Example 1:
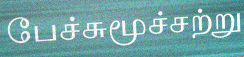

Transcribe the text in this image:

பேச்சுமூச்சற்று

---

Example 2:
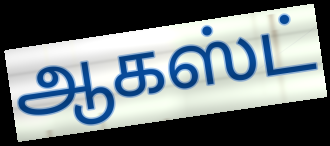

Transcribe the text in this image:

ஆகஸ்ட்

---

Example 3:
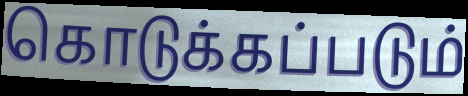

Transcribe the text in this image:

கொடுக்கப்படும்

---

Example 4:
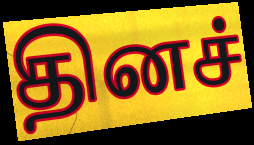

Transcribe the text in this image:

தினச்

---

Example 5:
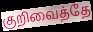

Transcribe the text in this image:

குறிவைத்தே